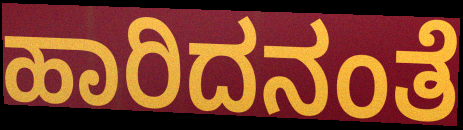
ಹಾರಿದನಂತೆ